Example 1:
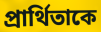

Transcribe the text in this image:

প্রার্থিতাকে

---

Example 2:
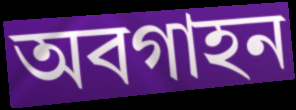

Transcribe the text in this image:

অবগাহন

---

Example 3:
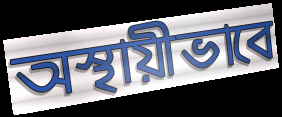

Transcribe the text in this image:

অস্থায়ীভাবে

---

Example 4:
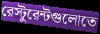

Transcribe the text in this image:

রেস্টুরেন্টগুলোতে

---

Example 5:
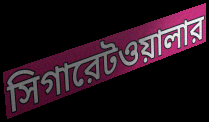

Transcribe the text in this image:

সিগারেটওয়ালার